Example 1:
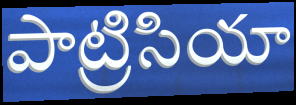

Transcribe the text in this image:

పాట్రిసియా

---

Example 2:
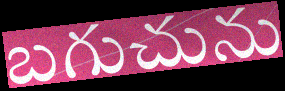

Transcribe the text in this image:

బగుచును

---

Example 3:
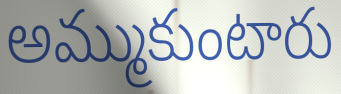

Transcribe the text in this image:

అమ్ముకుంటారు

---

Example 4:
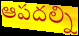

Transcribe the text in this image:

ఆపదల్ని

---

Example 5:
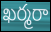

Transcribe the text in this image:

ఖర్మరా